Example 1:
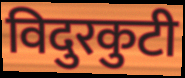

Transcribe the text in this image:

विदुरकुटी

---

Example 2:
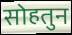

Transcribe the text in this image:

सोहतुन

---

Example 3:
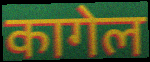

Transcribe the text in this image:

कागेल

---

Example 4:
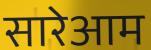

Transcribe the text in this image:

सारेआम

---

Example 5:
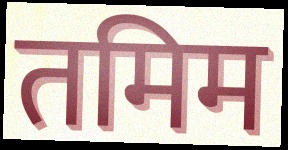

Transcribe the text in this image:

तमिम